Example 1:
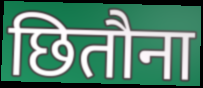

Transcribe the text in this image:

छितौना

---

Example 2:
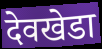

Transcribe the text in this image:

देवखेडा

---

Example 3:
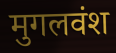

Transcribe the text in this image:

मुगलवंश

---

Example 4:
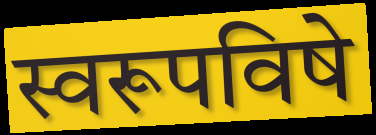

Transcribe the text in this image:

स्वरूपविषे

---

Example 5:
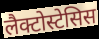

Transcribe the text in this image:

लैक्टोस्टेसिस